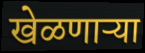
खेळणाऱ्या